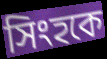
সিংহকে